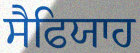
ਸੈਫਿਯਾਹ